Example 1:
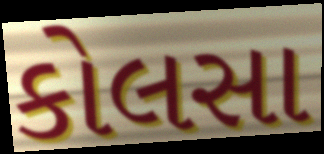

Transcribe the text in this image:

કોલસા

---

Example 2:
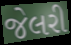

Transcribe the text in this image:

જેલરી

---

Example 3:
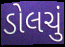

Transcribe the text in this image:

ડોલચું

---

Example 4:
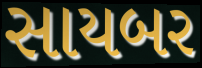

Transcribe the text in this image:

સાયબર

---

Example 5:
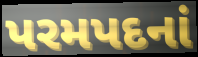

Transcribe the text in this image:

પરમપદનાં